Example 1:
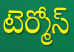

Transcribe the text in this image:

టెర్మోస్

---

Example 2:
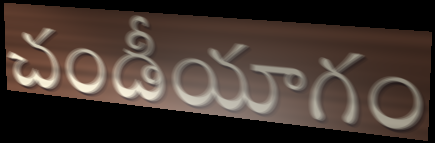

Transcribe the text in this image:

చండీయాగం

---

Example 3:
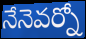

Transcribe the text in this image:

నేనెవర్నో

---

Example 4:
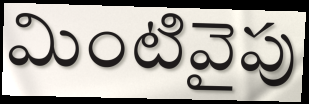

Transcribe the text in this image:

మింటివైపు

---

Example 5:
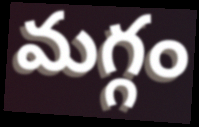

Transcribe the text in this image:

మగ్గం